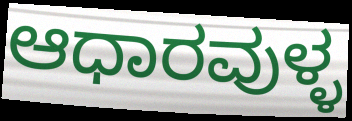
ಆಧಾರವುಳ್ಳ